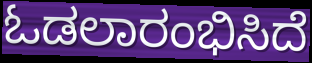
ಓಡಲಾರಂಭಿಸಿದೆ